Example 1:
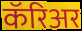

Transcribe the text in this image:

कॅरिअर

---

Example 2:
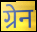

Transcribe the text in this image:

ग्रेन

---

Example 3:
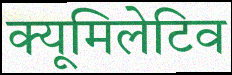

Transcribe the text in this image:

क्यूमिलेटिव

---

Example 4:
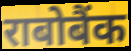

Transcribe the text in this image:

राबोबैंक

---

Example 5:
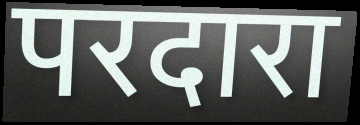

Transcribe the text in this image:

परदारा